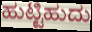
ಹುಟ್ಟಿಹುದು